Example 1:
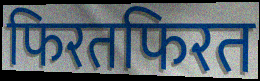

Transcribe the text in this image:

फिरतफिरत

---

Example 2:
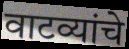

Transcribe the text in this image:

वाटव्यांचे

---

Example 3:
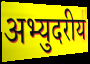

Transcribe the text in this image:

अभ्युदरीय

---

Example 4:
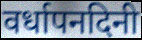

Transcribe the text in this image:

वर्धापनदिनी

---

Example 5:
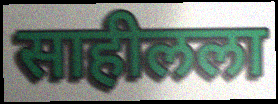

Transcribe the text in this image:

साहीलला